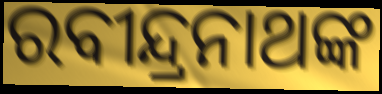
ରବୀନ୍ଦ୍ରନାଥଙ୍କ